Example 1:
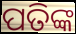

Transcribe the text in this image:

ପତିଙ୍କ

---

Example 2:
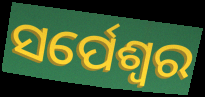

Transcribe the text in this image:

ସର୍ପେଶ୍ୱର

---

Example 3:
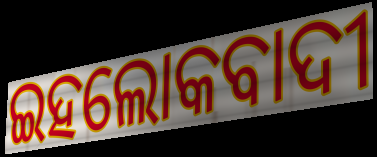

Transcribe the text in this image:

ଇହଲୋକବାଦୀ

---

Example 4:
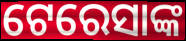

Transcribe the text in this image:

ଟେରେସାଙ୍କ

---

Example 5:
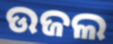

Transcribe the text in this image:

ଉଜଲ